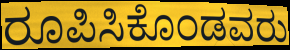
ರೂಪಿಸಿಕೊಂಡವರು